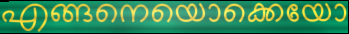
എങ്ങനെയൊക്കെയോ